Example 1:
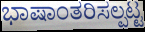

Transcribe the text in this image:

ಭಾಷಾಂತರಿಸಲ್ಪಟ್ಟ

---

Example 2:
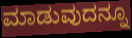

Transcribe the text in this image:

ಮಾಡುವುದನ್ನೂ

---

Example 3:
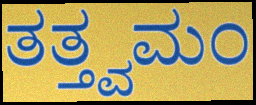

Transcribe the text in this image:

ತತ್ತ್ವಮಂ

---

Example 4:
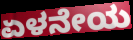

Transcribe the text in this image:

ಏಳನೇಯ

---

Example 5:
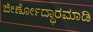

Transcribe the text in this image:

ಜೀರ್ಣೋದ್ಧಾರಮಾಡಿ